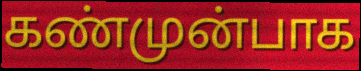
கண்முன்பாக